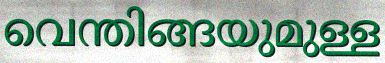
വെന്തിങ്ങയുമുള്ള